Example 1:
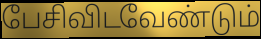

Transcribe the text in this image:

பேசிவிடவேண்டும்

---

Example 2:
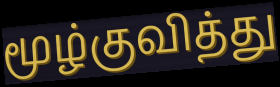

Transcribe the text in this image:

மூழ்குவித்து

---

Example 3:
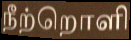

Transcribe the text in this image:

நீற்றொளி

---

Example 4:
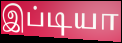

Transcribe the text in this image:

இப்டியா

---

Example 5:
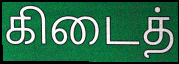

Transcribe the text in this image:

கிடைத்